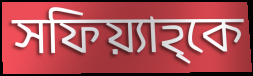
সফিয়্যাহ্কে